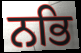
ਨਭਿ